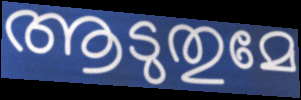
ആടുതുമേ